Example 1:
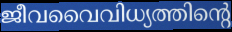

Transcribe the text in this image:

ജീവവൈവിധ്യത്തിന്റെ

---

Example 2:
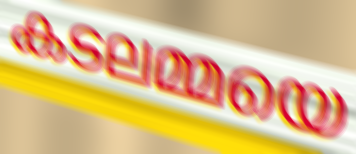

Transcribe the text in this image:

കടലമ്മയെ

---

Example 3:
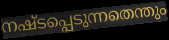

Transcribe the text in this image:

നഷ്ടപ്പെടുന്നതെന്തും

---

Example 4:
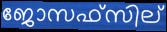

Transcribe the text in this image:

ജോസഫ്സില്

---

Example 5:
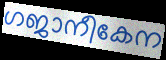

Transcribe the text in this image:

ഗജാനീകേന